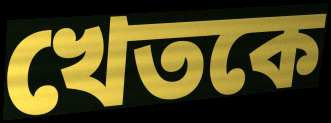
খেতকে